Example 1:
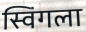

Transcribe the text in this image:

स्विंगला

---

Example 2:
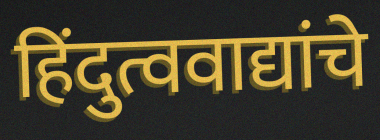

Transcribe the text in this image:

हिंदुत्ववाद्यांचे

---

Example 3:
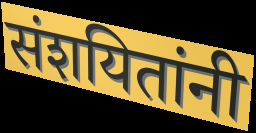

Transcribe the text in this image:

संशयितांनी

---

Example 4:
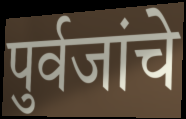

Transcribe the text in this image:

पुर्वजांचे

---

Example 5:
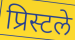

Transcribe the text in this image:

प्रिस्टले